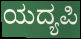
ಯದ್ಯಪಿ